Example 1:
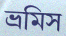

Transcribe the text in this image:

ভ্রমিস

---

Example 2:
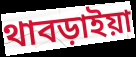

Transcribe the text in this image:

থাবড়াইয়া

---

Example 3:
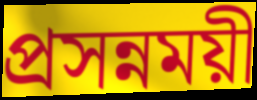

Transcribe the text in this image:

প্রসন্নময়ী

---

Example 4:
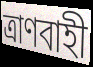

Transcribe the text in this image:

ত্রাণবাহী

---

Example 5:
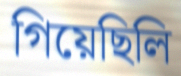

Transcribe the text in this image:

গিয়েছিলি